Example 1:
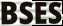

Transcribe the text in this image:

BSES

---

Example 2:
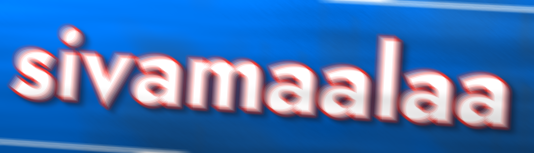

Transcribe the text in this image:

sivamaalaa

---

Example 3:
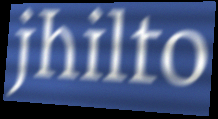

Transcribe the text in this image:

jhilto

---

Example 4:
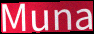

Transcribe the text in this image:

Muna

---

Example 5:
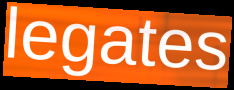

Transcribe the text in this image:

legates